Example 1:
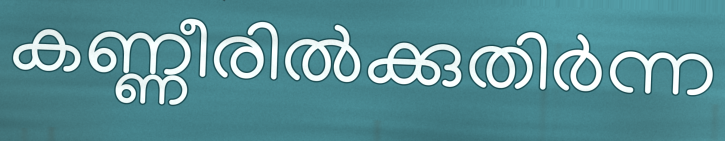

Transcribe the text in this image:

കണ്ണീരിൽക്കുതിർന്ന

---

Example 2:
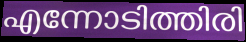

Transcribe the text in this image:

എന്നോടിത്തിരി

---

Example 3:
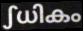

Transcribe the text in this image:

ഽധികം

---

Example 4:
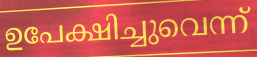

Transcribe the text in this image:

ഉപേക്ഷിച്ചുവെന്ന്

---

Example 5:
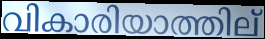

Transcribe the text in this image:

വികാരിയാത്തില്